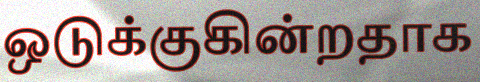
ஒடுக்குகின்றதாக